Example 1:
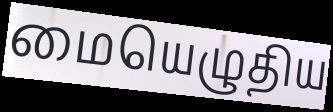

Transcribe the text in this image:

மையெழுதிய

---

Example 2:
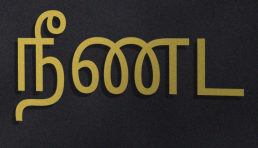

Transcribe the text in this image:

நீணட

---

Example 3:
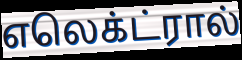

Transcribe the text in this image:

எலெக்ட்ரால்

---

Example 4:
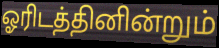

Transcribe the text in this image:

ஓரிடத்தினின்றும்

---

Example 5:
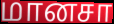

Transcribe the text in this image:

மானசா